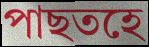
পাছতহে